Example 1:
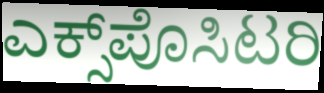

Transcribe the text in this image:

ಎಕ್ಸ್‌ಪೊಸಿಟರಿ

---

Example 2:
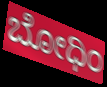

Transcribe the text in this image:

ಬೋಧಿಂ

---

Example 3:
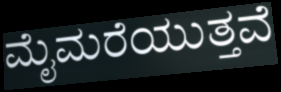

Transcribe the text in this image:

ಮೈಮರೆಯುತ್ತವೆ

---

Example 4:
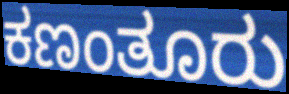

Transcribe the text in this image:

ಕಣಂತೂರು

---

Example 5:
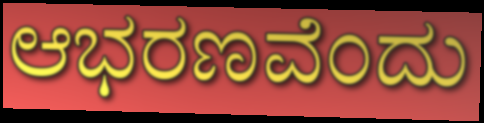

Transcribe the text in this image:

ಆಭರಣವೆಂದು